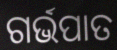
ଗର୍ଭପାତ